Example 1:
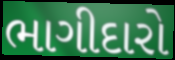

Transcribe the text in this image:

ભાગીદારો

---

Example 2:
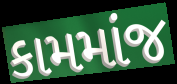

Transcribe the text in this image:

કામમાંજ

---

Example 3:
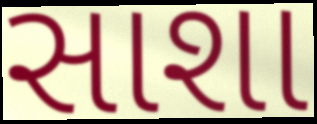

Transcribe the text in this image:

સાશા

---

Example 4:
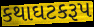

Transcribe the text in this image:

કથાઘટકરૂપ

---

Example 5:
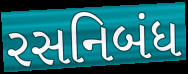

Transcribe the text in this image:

રસનિબંધ